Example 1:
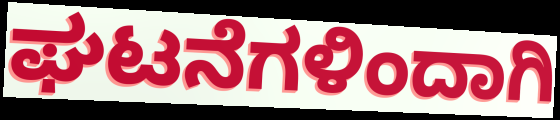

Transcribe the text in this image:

ಘಟನೆಗಳಿಂದಾಗಿ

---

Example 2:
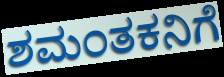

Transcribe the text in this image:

ಶಮಂತಕನಿಗೆ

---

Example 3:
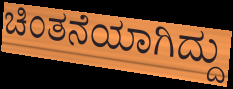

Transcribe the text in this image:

ಚಿಂತನೆಯಾಗಿದ್ದು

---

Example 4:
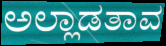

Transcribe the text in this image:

ಅಲ್ಲಾಡತಾವ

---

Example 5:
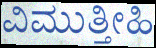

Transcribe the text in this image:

ವಿಮುತ್ತೀಹಿ